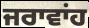
ਜਰਾਵਾਂਹ